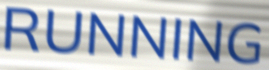
RUNNING